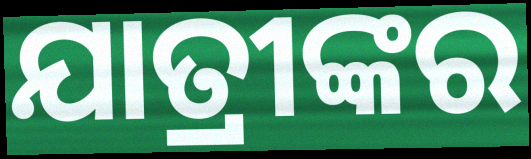
ଯାତ୍ରୀଙ୍କର